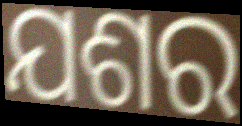
ଯଶର